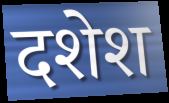
दशेश